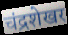
चंद्रशेखर